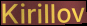
Kirillov